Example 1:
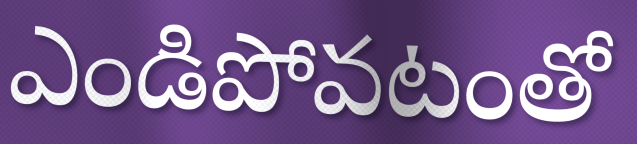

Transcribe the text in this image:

ఎండిపోవటంతో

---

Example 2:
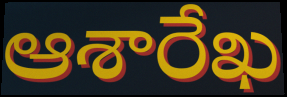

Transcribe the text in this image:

ఆశారేఖ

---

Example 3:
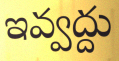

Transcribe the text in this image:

ఇవ్వద్దు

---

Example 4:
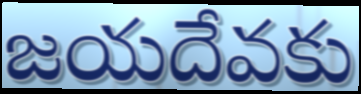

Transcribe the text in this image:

జయదేవకు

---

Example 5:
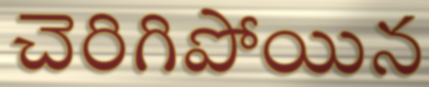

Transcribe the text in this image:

చెరిగిపోయిన